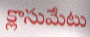
క్లాసుమేటు